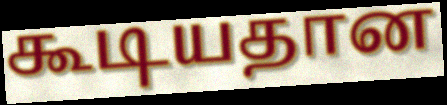
கூடியதான